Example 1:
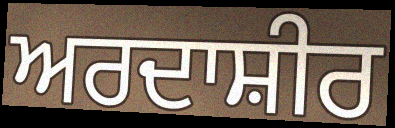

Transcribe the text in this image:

ਅਰਦਾਸ਼ੀਰ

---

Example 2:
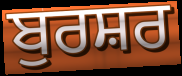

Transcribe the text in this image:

ਬੁਰਸ਼ਰ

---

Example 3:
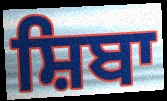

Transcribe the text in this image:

ਸ਼ਿਬਾ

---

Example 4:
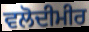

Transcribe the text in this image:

ਵਲੋਦੀਮੀਰ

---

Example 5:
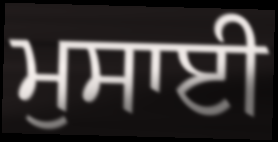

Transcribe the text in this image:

ਮੁਸਾਈ